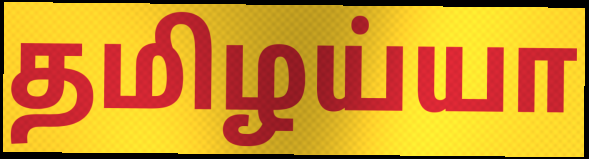
தமிழய்யா